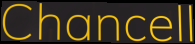
Chancell